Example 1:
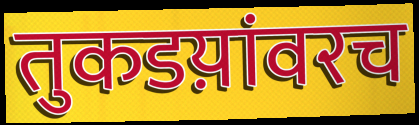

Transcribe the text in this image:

तुकडय़ांवरच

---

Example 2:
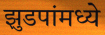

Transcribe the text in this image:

झुडपांमध्ये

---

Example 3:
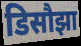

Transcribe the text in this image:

डिसौझा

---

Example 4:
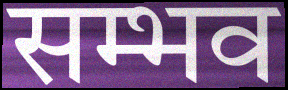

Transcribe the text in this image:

सम्भव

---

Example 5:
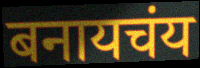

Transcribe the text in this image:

बनायचंय